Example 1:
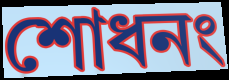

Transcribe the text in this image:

শোধনং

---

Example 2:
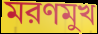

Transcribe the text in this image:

মরণমুখ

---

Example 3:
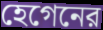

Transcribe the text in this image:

হেগেনের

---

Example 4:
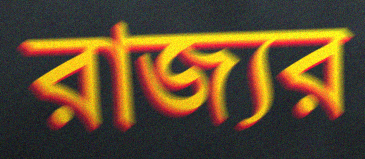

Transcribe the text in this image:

রাজ্যর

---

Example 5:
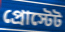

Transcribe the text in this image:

প্রোস্টেট